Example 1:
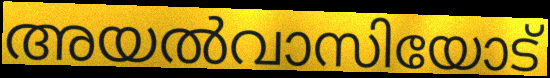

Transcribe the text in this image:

അയൽവാസിയോട്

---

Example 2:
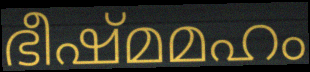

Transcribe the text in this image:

ഭീഷ്മമഹം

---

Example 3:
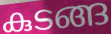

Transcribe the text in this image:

കുടങ്ങ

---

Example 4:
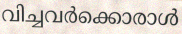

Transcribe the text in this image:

വിച്ചവർക്കൊരാൾ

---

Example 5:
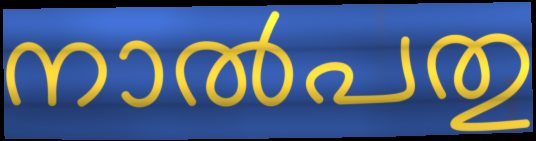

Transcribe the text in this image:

നാൽപതു